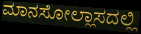
ಮಾನಸೋಲ್ಲಾಸದಲ್ಲಿ